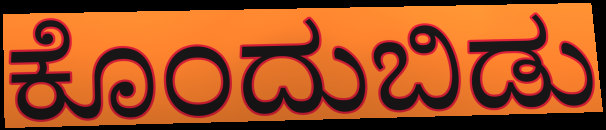
ಕೊಂದುಬಿಡು